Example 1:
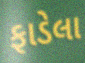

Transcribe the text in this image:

ફાડેલા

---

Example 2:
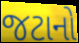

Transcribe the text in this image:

જટાનો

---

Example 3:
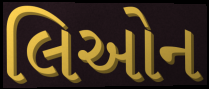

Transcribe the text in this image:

લિઓન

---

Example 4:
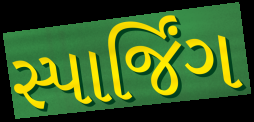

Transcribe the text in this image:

સ્પાર્જિંગ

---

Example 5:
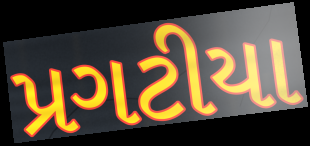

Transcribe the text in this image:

પ્રગટીયા